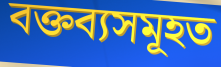
বক্তব্যসমূহত